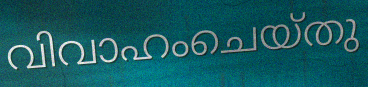
വിവാഹംചെയ്തു